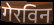
गेरविन